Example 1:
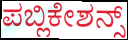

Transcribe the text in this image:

ಪಬ್ಲಿಕೇಶನ್ಸ್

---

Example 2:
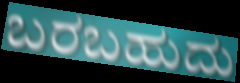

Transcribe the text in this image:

ಬರಬಹುದು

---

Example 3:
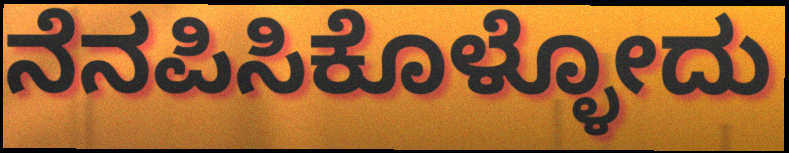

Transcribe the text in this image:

ನೆನಪಿಸಿಕೊಳ್ಳೋದು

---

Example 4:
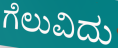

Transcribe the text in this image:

ಗೆಲುವಿದು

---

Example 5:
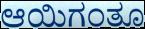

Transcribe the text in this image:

ಆಯಿಗಂತೂ